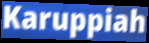
Karuppiah